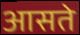
आसते